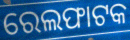
ରେଲଫାଟକ